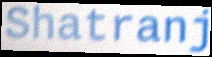
Shatranj